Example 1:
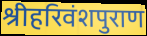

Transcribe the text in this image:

श्रीहरिवंशपुराण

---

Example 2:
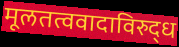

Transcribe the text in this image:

मूलतत्ववादाविरुद्ध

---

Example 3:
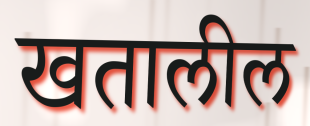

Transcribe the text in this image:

खतालील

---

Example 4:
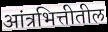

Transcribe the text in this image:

आंत्रभित्तीतील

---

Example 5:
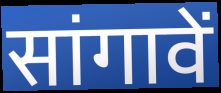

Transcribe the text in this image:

सांगावें